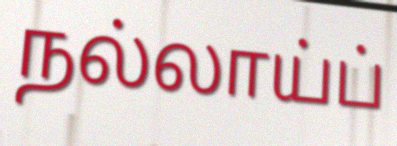
நல்லாய்ப்